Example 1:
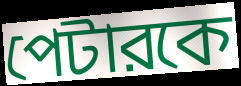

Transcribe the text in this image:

পেটারকে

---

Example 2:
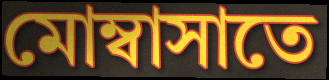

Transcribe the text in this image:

মোম্বাসাতে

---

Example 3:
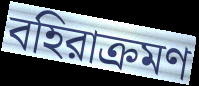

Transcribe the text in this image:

বহিরাক্রমণ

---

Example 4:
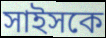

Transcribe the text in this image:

সাইসকে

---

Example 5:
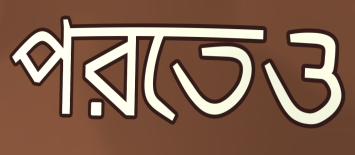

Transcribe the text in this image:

পরতেও